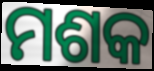
ମଶକ